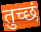
तुच्छं